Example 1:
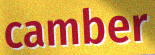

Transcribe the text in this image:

camber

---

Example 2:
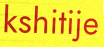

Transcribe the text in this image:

kshitije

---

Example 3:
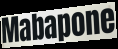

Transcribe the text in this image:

Mabapone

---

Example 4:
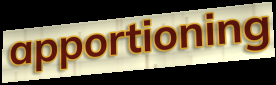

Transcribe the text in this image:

apportioning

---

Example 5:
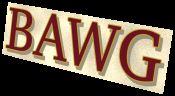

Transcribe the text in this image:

BAWG